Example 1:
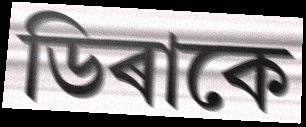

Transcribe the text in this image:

ডিৰাকে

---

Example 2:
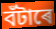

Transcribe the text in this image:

বঁটাৰে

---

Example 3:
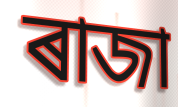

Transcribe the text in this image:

ৰাজা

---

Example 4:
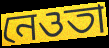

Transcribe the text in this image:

নেওতা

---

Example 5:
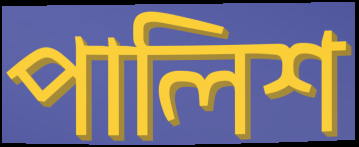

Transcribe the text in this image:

পালিশ